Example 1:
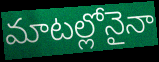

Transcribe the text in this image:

మాటల్లోనైనా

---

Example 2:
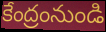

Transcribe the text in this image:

కేంద్రంనుండి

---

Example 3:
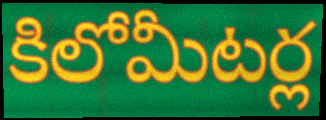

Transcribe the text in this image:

కిలోమీటర్ల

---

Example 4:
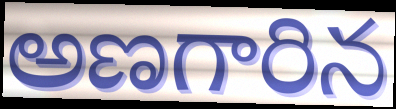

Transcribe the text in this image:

అణగారిన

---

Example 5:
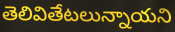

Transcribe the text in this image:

తెలివితేటలున్నాయని